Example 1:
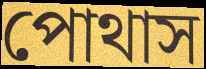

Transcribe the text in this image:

পোথাস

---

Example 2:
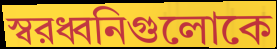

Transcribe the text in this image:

স্বরধ্বনিগুলোকে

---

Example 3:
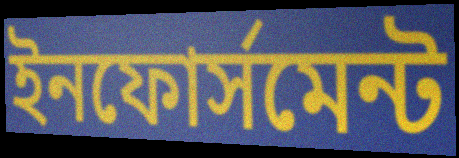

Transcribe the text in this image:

ইনফোর্সমেন্ট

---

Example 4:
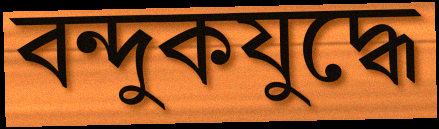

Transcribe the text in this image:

বন্দুকযুদ্ধে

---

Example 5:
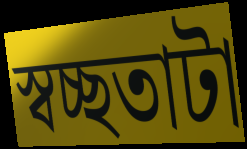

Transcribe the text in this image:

স্বচ্ছতাটা